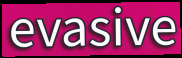
evasive